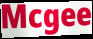
Mcgee